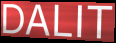
DALIT